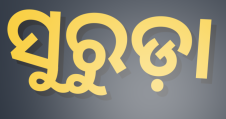
ସୁରୁଡ଼ା